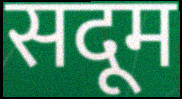
सदूम